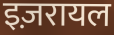
इज़रायल